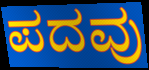
ಪದವು